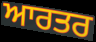
ਆਰਤਰ